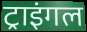
ट्राइंगल